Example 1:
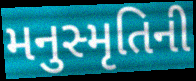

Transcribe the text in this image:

મનુસ્મૃતિની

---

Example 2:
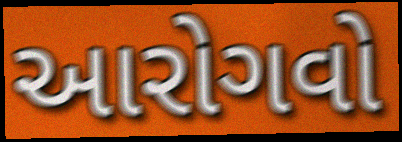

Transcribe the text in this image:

આરોગવો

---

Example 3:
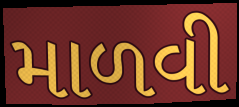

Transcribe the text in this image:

માળવી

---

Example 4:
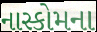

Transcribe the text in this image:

નાસ્કોમના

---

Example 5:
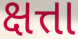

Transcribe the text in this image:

ક્ષત્તા